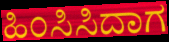
ಹಿಂಸಿಸಿದಾಗ